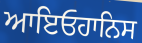
ਆਇਓਹਾਨਿਸ